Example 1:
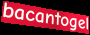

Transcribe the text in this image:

bacantogel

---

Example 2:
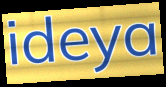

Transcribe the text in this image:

ideya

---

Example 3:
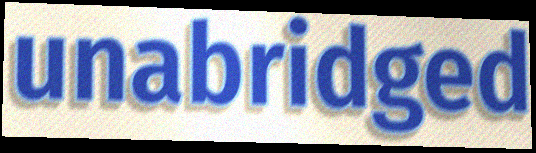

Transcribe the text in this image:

unabridged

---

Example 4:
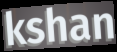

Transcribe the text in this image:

kshan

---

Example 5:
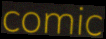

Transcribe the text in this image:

comic